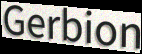
Gerbion